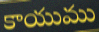
కాయుము